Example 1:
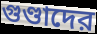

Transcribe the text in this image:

গুণ্ডাদের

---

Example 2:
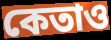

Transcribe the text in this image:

কেতাও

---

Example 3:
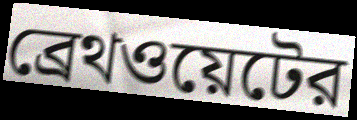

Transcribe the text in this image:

ব্রেথওয়েটের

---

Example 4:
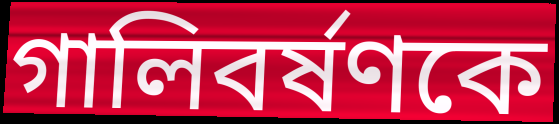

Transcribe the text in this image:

গালিবর্ষণকে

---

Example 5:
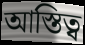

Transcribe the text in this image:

আস্তিত্ব